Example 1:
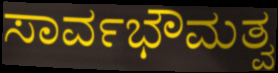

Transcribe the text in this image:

ಸಾರ್ವಭೌಮತ್ವ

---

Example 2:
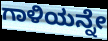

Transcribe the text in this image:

ಗಾಳಿಯನ್ನೇ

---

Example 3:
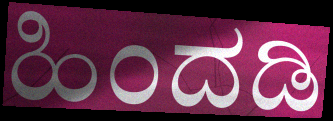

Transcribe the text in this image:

ಹಿಂದಡಿ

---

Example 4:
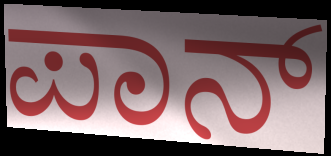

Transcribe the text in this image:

ಪಾನ್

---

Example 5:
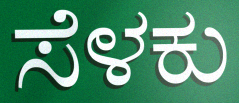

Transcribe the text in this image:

ಸೆಳಕು